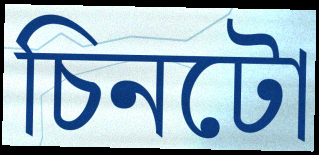
চিনটো